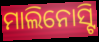
ମାଲିନୋସ୍ଟି